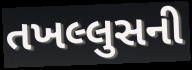
તખલ્લુસની